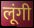
लूंगी